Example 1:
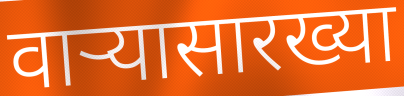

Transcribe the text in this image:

वाऱ्यासारख्या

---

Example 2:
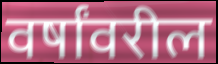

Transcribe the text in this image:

वर्षांवरील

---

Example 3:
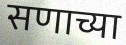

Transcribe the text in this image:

सणाच्या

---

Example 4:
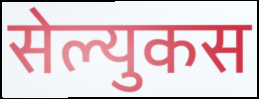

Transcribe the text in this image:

सेल्युकस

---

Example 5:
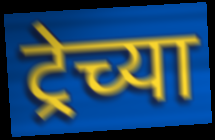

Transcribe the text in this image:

ट्रेच्या